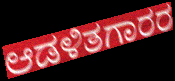
ಆಡಳಿತಗಾರರ